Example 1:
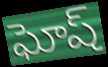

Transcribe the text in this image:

ఘోష్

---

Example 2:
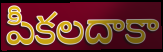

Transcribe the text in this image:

పీకలదాకా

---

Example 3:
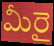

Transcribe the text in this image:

మీరై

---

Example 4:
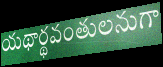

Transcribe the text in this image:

యథార్థవంతులనుగా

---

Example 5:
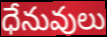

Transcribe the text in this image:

ధేనువులు